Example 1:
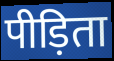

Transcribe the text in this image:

पीड़िता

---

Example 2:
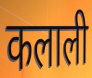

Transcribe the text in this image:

कलाली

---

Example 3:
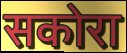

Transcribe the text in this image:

सकोरा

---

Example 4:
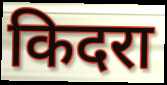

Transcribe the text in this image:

किदरा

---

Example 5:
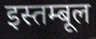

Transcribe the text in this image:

इस्तम्बूल